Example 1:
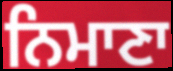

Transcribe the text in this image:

ਨਿਮਾਣਾ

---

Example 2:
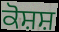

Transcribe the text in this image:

ਕੋਸ਼ਸ਼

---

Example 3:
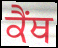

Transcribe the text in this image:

ਕੈਂਥ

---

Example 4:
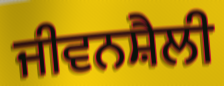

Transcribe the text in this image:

ਜੀਵਨਸ਼ੈਲੀ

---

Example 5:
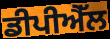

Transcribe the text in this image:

ਡੀਪੀਐੱਲ